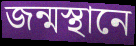
জন্মস্থানে